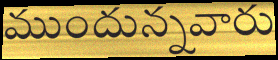
ముందున్నవారు